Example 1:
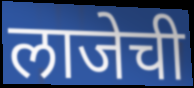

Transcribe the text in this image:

लाजेची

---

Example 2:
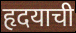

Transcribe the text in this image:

हृदयाची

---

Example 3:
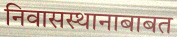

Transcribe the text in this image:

निवासस्थानाबाबत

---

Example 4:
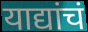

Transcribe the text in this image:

याद्यांचं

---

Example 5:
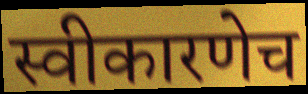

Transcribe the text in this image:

स्वीकारणेच